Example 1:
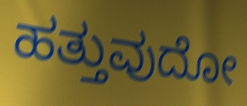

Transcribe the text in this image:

ಹತ್ತುವುದೋ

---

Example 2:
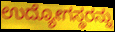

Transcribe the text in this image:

ಉದ್ಯೋಗಸ್ಥರನ್ನು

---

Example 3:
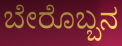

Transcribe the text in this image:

ಬೇರೊಬ್ಬನ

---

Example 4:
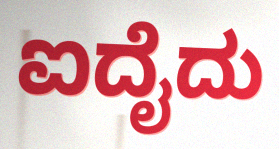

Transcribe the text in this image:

ಐದೈದು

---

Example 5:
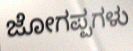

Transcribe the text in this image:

ಜೋಗಪ್ಪಗಳು